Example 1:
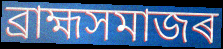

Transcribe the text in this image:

ব্ৰাহ্মসমাজৰ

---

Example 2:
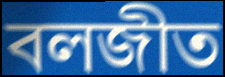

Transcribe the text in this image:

বলজীত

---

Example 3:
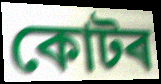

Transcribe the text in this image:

কোটৰ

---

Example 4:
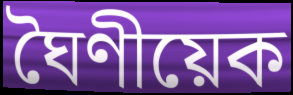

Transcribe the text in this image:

ঘৈণীয়েক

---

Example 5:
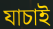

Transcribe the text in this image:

যাচাই